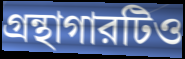
গ্রন্থাগারটিও